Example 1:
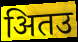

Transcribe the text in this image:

अितउ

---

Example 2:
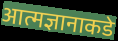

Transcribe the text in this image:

आत्मज्ञानाकडे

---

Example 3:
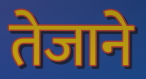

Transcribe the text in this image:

तेजाने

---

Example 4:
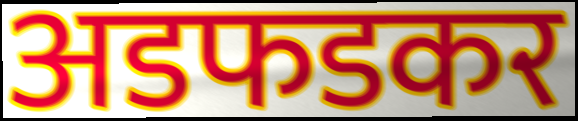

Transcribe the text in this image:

अडफडकर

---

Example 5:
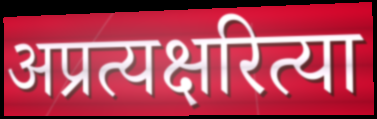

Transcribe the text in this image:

अप्रत्यक्षरित्या